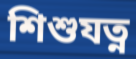
শিশুযত্ন